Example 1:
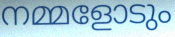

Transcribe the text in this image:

നമ്മളോടും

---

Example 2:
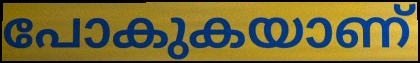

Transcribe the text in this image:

പോകുകയാണ്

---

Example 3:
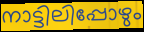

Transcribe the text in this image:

നാട്ടിലിപ്പോഴും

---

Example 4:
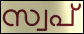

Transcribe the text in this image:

സ്വപ്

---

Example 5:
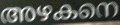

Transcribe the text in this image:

അഴകനെ